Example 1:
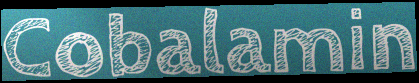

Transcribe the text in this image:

Cobalamin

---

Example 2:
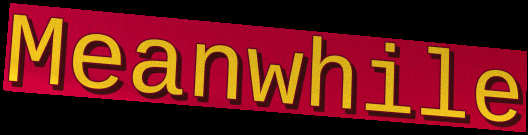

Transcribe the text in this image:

Meanwhile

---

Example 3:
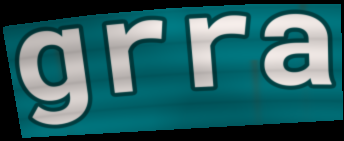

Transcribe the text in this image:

grra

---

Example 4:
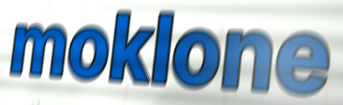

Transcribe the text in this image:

moklone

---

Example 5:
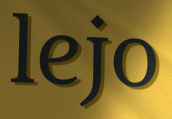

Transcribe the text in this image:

lejo